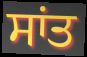
ਸਾਂਤ